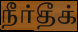
நீர்தீக்